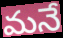
మనే